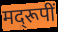
मद्‌रूपीं